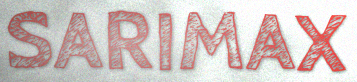
SARIMAX